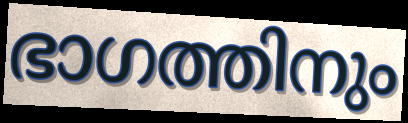
ഭാഗത്തിനും